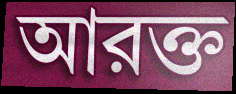
আরক্ত